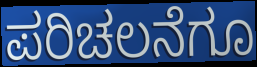
ಪರಿಚಲನೆಗೂ